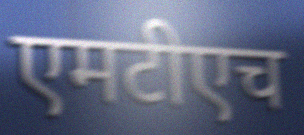
एमटीएच